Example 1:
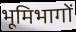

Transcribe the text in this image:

भूमिभागों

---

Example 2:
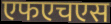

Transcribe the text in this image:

एफएचएस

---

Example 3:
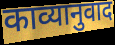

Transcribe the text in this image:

काव्यानुवाद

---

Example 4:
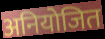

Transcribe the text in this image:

अनियोजित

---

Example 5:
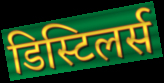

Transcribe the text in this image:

डिस्टिलर्स